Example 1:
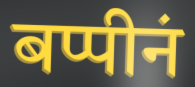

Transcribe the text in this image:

बप्पीनं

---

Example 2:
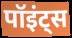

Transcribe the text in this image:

पॉइंट्स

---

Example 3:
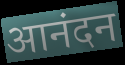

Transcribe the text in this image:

आनंदन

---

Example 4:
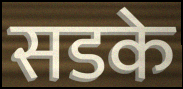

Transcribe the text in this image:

सडके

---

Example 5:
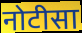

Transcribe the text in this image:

नोटीसा